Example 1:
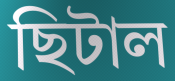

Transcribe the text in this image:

ছিটাল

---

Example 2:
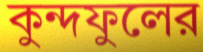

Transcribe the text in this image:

কুন্দফুলের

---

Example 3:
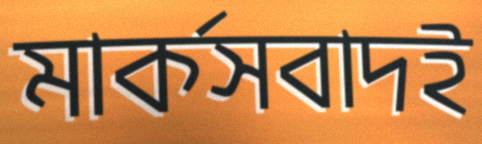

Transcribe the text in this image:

মার্কসবাদই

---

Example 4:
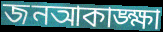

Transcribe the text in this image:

জনআকাঙ্ক্ষা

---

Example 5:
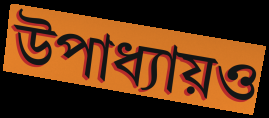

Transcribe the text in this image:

উপাধ্যায়ও